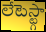
లేటెస్ట్గా